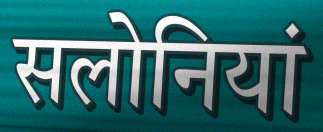
सलोनियां